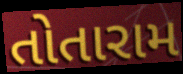
તોતારામ